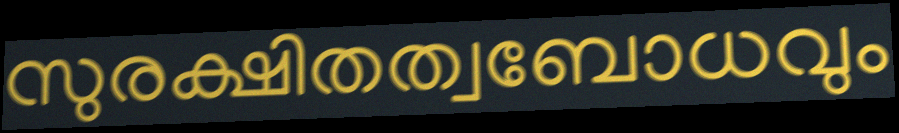
സുരക്ഷിതത്വബോധവും